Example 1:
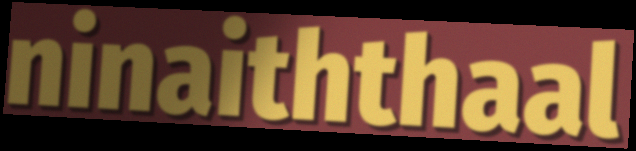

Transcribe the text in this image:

ninaiththaal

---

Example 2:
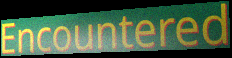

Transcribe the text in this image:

Encountered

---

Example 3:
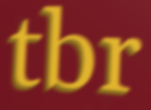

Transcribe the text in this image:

tbr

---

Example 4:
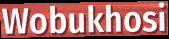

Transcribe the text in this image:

Wobukhosi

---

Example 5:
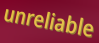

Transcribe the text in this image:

unreliable